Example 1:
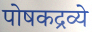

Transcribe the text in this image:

पोषकद्रव्ये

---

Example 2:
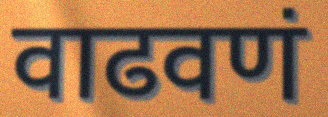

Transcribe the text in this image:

वाढवणं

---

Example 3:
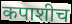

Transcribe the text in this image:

कपाशीच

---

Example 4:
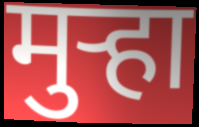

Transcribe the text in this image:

मुऱ्हा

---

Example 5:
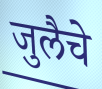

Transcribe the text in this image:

जुलैचे